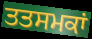
ਤਤਸਮਕਾਂ